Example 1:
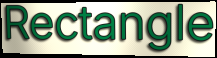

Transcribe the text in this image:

Rectangle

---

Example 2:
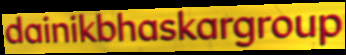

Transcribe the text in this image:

dainikbhaskargroup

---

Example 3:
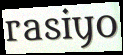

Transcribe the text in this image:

rasiyo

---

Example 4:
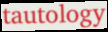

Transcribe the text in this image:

tautology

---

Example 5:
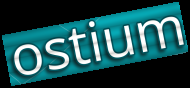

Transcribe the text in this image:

ostium